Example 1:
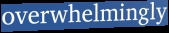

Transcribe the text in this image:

overwhelmingly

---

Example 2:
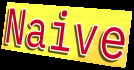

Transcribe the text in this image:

Naive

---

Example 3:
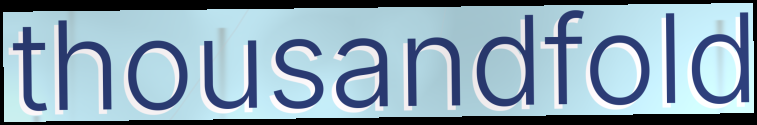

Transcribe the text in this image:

thousandfold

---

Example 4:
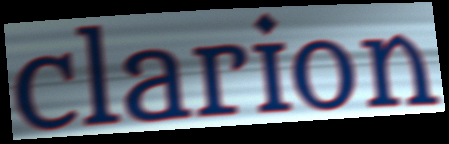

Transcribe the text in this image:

clarion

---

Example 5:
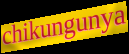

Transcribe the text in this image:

chikungunya